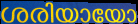
ശരിയായോ